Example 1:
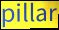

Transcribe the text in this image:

pillar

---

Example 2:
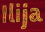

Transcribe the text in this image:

Ilija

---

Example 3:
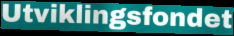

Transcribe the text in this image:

Utviklingsfondet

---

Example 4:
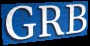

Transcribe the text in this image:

GRB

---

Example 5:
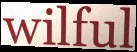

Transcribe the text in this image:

wilful